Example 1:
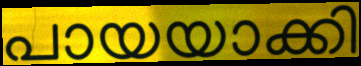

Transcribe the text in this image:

പായയാക്കി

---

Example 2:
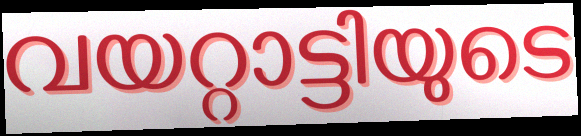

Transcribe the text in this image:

വയറ്റാട്ടിയുടെ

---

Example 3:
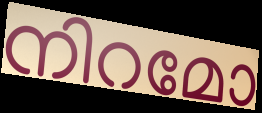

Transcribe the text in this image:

നിറമോ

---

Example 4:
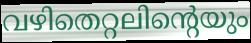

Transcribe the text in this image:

വഴിതെറ്റലിന്റെയും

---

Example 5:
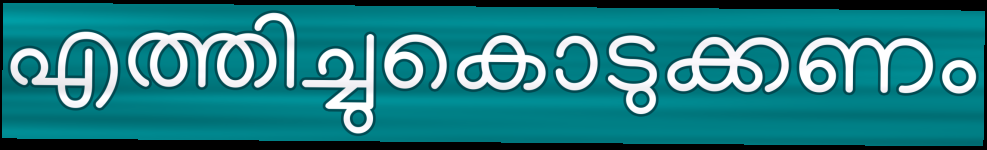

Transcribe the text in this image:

എത്തിച്ചുകൊടുക്കണം